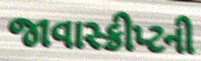
જાવાસ્ક્રીપ્ટની